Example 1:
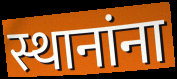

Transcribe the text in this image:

स्थानांना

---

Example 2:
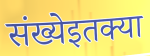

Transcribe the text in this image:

संख्येइतक्या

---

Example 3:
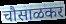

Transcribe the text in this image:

चौसाळकर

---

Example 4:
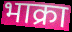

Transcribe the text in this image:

भाक्रा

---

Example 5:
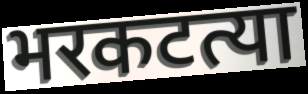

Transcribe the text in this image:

भरकटत्या